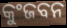
କୁଂଜବନ